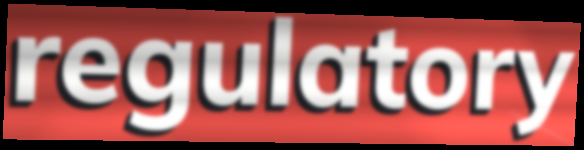
regulatory